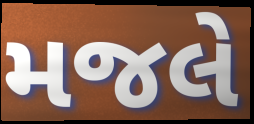
મજલે